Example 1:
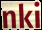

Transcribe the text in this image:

nki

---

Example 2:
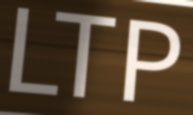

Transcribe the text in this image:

LTP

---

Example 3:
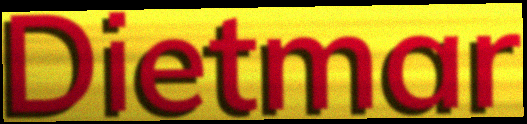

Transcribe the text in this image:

Dietmar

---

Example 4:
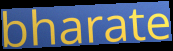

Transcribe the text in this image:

bharate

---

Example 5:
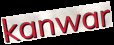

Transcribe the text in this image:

kanwar